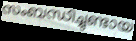
സംബന്ധിച്ചുണ്ടായ